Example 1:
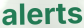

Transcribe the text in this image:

alerts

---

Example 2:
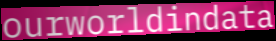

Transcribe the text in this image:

ourworldindata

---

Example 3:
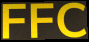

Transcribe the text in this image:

FFC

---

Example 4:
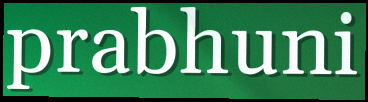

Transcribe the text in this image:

prabhuni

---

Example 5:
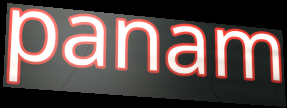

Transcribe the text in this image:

panam